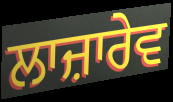
ਲਾਜ਼ਾਰੇਵ